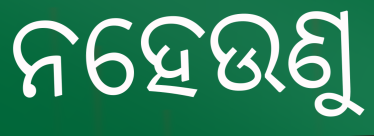
ନହେଉଣୁ